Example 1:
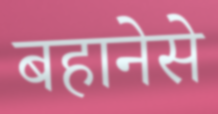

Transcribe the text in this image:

बहानेसे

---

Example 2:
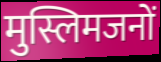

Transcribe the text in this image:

मुस्लिमजनों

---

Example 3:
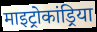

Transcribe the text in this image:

माइट्रोकांड्रिया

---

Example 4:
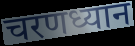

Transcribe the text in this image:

चरणध्यान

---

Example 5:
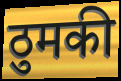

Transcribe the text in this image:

ठुमकी